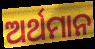
ଅର୍ଥମାନ